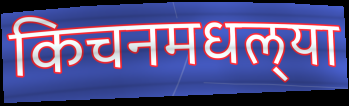
किचनमधल्या